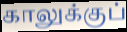
காலுக்குப்